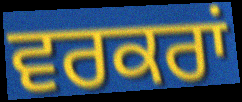
ਵਰਕਰਾਂ